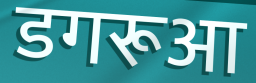
डगरूआ